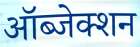
ऑब्जेक्शन